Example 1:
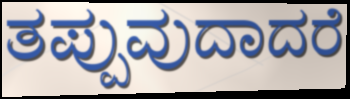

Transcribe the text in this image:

ತಪ್ಪುವುದಾದರೆ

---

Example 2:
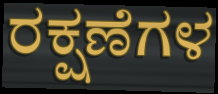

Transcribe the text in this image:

ರಕ್ಷಣೆಗಳ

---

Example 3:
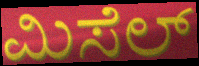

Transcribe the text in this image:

ಮಿಸೆಲ್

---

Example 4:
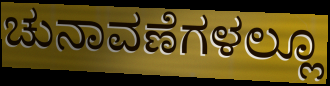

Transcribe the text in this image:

ಚುನಾವಣೆಗಳಲ್ಲೂ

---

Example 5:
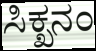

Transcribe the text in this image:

ಸಿಕ್ಖನಂ